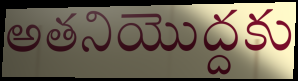
అతనియొద్దకు